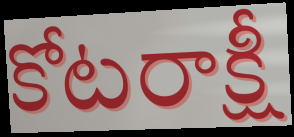
కోటరాక్షీ